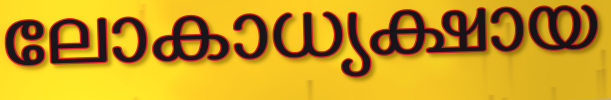
ലോകാധ്യക്ഷായ